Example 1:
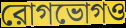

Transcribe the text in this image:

রোগভোগও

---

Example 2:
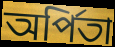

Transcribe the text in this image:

অর্পিতা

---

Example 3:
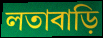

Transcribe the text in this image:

লতাবাড়ি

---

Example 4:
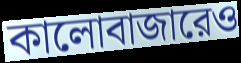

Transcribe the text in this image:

কালোবাজারেও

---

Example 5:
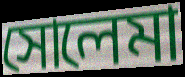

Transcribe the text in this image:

সোলেমা